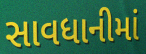
સાવધાનીમાં